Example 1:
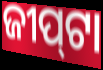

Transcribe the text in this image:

ଜୀପ୍‍ଟା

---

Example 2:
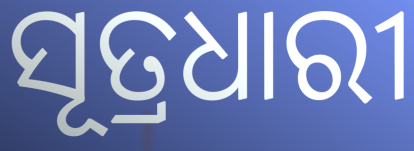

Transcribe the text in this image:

ସୂତ୍ରଧାରୀ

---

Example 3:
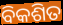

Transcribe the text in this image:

ବିକଶିତ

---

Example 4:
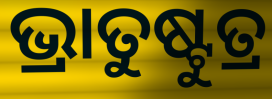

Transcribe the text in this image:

ଭ୍ରାତୁଷ୍ଟୁତ୍ର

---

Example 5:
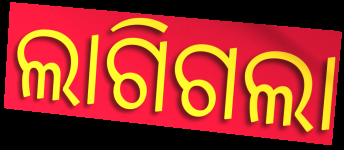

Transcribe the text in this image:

ଲାଗିଗଲା